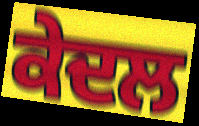
ਕੇਦਲ